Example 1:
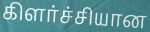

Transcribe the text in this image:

கிளர்ச்சியான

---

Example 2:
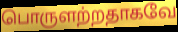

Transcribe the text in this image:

பொருளற்றதாகவே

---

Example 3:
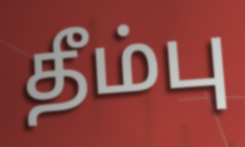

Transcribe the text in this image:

தீம்பு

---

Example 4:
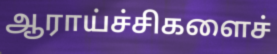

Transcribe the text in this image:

ஆராய்ச்சிகளைச்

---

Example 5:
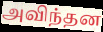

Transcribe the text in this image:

அவிந்தன